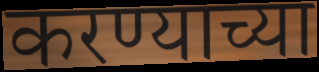
करण्याच्या